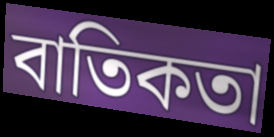
বাতিকতা